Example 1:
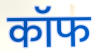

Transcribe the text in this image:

कॉफ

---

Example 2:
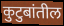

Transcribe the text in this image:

कुटुबांतील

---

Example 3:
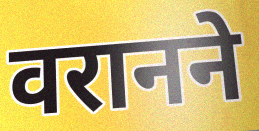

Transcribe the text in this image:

वरानने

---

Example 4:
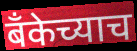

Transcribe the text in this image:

बँकेच्याच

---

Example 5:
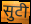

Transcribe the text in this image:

सुटी